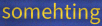
somehting